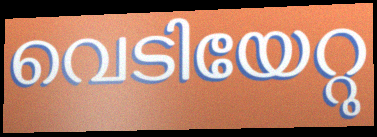
വെടിയേറ്റു